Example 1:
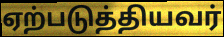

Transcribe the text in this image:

ஏற்படுத்தியவர்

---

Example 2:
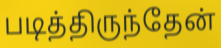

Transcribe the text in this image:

படித்திருந்தேன்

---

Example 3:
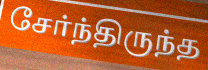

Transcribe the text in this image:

சேர்ந்திருந்த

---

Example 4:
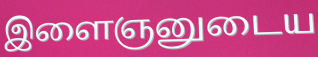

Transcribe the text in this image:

இளைஞனுடைய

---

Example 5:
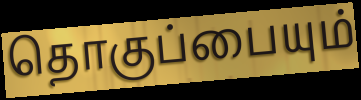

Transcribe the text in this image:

தொகுப்பையும்